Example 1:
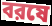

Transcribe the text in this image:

বরষে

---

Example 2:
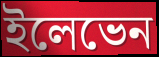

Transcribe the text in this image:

ইলেভেন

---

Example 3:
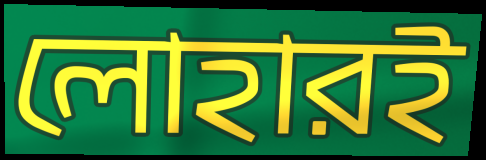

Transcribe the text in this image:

লোহারই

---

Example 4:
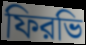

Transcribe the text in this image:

ফিরভি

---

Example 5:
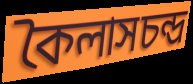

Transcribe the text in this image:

কৈলাসচন্দ্র